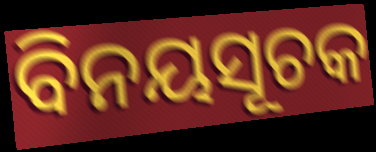
ବିନୟସୂଚକ